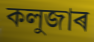
কলুজাৰ